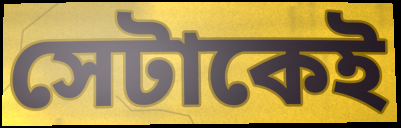
সেটাকেই